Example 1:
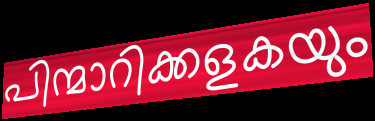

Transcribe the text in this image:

പിന്മാറിക്കളകയും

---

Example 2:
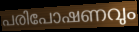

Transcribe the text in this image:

പരിപോഷണവും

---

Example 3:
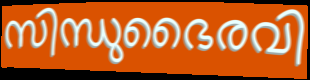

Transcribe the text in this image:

സിന്ധുഭൈരവി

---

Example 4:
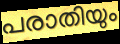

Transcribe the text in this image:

പരാതിയും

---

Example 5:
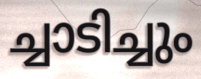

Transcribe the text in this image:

ച്ചാടിച്ചും